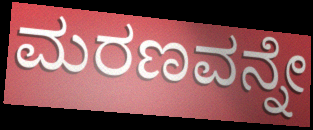
ಮರಣವನ್ನೇ